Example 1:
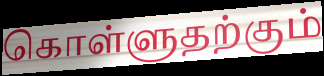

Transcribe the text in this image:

கொள்ளுதற்கும்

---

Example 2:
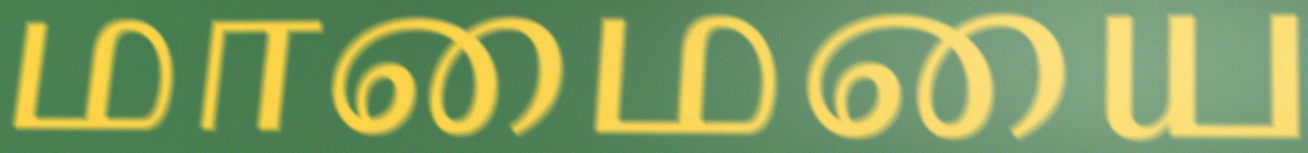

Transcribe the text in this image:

மாமையை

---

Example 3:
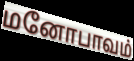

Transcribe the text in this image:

மனோபாவம்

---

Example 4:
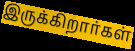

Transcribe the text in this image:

இருக்கிறார்கள்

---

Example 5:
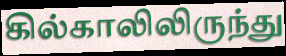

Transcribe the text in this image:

கில்காலிலிருந்து